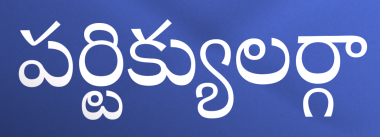
పర్టిక్యులర్గా